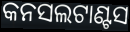
କନସଲଟାଣ୍ଟସ